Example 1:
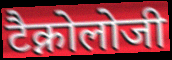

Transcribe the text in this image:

टैक्नोलोजी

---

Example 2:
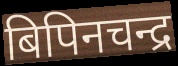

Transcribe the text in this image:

बिपिनचन्द्र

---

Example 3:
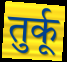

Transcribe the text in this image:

तुर्कू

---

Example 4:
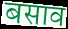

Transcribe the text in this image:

बसाव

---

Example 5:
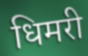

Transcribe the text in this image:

धिमरी